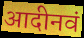
आदीनवं